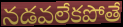
నడవలేకపోతే